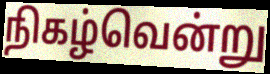
நிகழ்வென்று